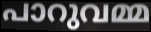
പാറുവമ്മ